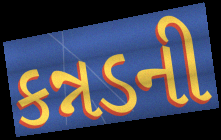
કન્નડની